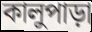
কালুপাড়া